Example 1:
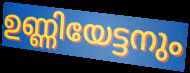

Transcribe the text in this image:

ഉണ്ണിയേട്ടനും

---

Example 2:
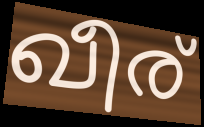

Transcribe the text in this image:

ഖീര്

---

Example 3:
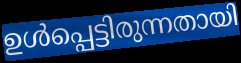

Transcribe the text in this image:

ഉൾപ്പെട്ടിരുന്നതായി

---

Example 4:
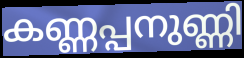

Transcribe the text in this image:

കണ്ണപ്പനുണ്ണി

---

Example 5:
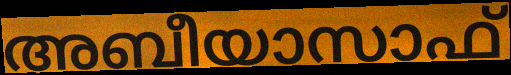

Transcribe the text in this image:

അബീയാസാഫ്